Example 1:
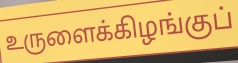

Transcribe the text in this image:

உருளைக்கிழங்குப்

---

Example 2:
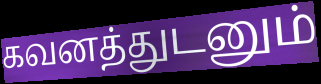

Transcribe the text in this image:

கவனத்துடனும்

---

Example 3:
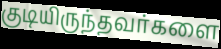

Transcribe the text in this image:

குடியிருந்தவர்களை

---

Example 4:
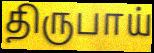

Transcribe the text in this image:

திருபாய்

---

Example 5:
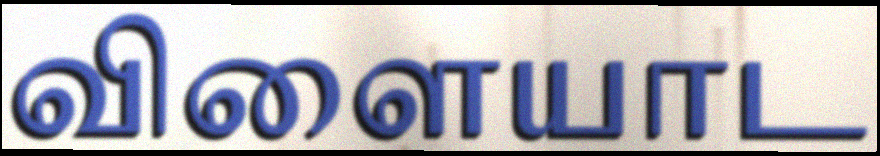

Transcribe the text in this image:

விளையாட